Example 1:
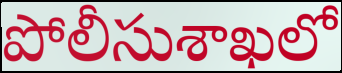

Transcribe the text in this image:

పోలీసుశాఖలో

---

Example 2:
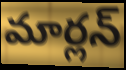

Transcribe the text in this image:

మార్లన్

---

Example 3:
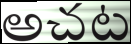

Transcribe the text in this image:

అచట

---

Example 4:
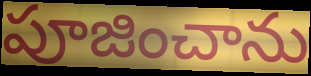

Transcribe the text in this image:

పూజించాను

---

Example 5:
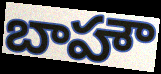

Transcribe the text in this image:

బాహౌ